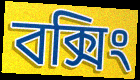
বক্সিং